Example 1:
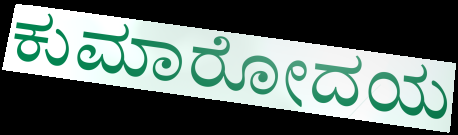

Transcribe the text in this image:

ಕುಮಾರೋದಯ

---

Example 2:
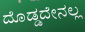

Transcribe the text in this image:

ದೊಡ್ಡದೇನಲ್ಲ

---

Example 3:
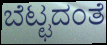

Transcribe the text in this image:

ಬೆಟ್ಟದಂತೆ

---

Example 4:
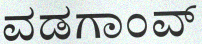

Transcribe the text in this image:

ವಡಗಾಂವ್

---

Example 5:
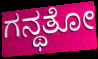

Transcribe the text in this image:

ಗನ್ಥತೋ